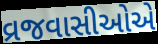
વ્રજવાસીઓએ